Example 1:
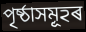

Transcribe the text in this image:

পৃষ্ঠাসমূহৰ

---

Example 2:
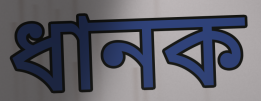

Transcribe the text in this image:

ধানক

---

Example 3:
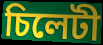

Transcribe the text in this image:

চিলেটী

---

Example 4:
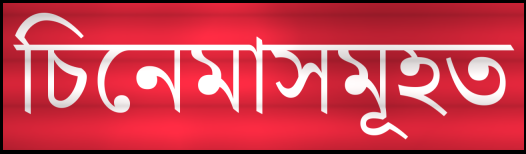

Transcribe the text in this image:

চিনেমাসমূহত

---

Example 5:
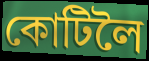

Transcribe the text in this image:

কোটিলৈ